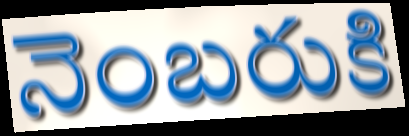
నెంబరుకి